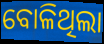
ବୋଳିଥିଲା